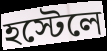
হস্টেলে